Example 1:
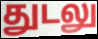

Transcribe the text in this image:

துடலு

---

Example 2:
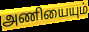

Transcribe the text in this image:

அணியையும்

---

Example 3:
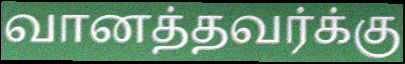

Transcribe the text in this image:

வானத்தவர்க்கு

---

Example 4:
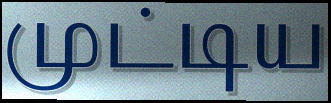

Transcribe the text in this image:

முட்டிய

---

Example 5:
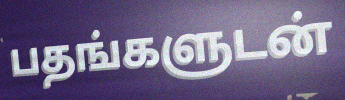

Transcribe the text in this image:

பதங்களுடன்